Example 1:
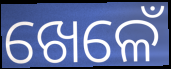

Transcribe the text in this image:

ଖେଳେଁ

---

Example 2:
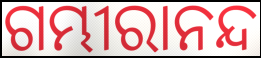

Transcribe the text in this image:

ଗମ୍ଭୀରାନନ୍ଦ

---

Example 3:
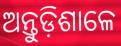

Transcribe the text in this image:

ଅନ୍ତୁଡ଼ିଶାଳେ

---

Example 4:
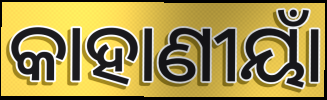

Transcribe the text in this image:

କାହାଣୀୟାଁ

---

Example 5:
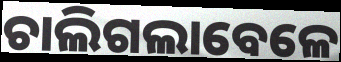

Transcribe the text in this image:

ଚାଲିଗଲାବେଳେ